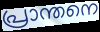
പ്രാന്തനെ